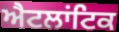
ਐਟਲਾਂਟਿਕ